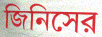
জিনিসের